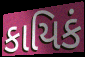
કાયિકં